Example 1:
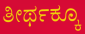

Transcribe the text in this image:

ತೀರ್ಥಕ್ಕೂ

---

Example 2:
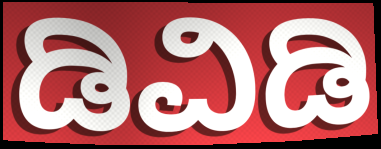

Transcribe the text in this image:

ಡಿವಿಡಿ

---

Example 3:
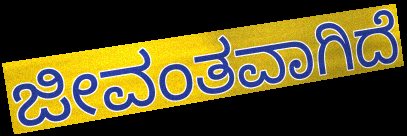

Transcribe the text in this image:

ಜೀವಂತವಾಗಿದೆ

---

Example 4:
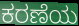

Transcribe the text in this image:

ಕರಣೆಯ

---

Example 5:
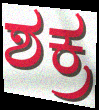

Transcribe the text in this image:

ಶಕ್ರ